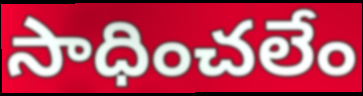
సాధించలేం